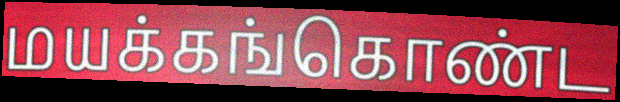
மயக்கங்கொண்ட